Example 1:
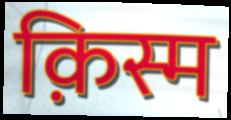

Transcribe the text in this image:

क़िस्‍म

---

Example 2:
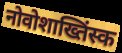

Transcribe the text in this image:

नोवोशाख्तिंस्क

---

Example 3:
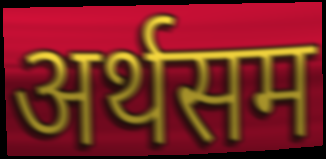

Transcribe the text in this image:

अर्थसम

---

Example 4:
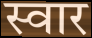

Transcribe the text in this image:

स्‍वार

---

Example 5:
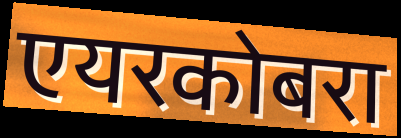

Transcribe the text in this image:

एयरकोबरा